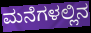
ಮನೆಗಳಲ್ಲಿನ